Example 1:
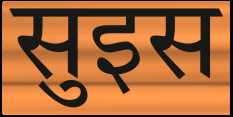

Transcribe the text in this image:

सुइस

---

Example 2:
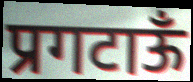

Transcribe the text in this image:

प्रगटाऊँ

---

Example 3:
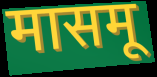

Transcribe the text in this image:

मासमू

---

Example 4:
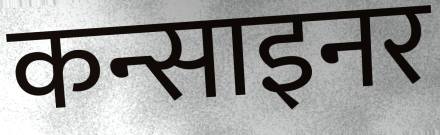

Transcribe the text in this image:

कन्साइनर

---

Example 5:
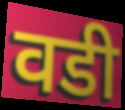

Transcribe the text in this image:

वडी